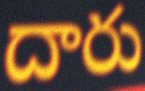
దారు